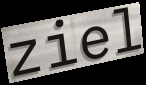
ziel